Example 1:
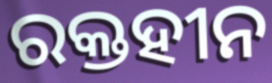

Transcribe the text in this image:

ରକ୍ତହୀନ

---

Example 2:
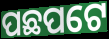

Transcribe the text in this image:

ପଛପଟେ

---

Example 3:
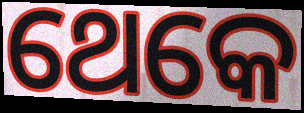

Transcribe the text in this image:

ଥେକେ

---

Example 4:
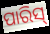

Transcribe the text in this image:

ପାରିସ୍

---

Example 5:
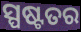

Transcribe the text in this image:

ସ୍ପଷ୍ଟତର